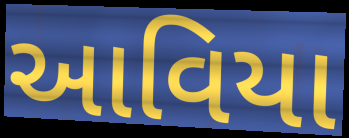
આવિયા